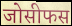
जोसीफस